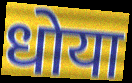
धोया